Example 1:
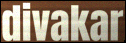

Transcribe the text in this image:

divakar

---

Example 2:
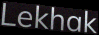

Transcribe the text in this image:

Lekhak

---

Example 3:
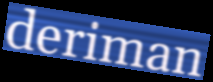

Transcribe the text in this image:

deriman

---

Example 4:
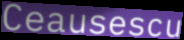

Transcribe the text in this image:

Ceausescu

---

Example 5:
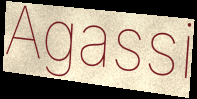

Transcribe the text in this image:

Agassi